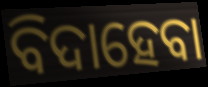
ବିଦାହେବା